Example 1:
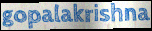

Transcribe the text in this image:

gopalakrishna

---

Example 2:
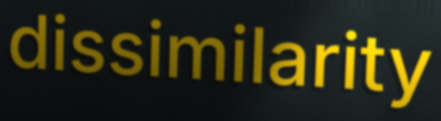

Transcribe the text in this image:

dissimilarity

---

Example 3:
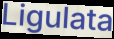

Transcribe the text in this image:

Ligulata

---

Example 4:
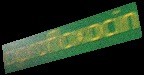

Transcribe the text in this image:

ciprofloxacin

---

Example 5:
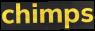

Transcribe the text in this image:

chimps